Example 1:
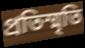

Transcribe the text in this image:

প্রতিস্মৃতি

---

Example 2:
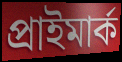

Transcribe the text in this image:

প্রাইমার্ক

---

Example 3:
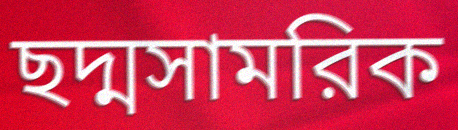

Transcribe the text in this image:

ছদ্মসামরিক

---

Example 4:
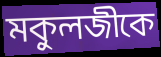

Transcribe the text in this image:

মকুলজীকে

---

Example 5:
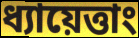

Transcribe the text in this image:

ধ্যায়েত্তাং